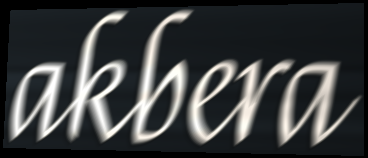
akbera